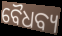
ବୈଧବ୍ୟ